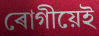
ৰোগীয়েই